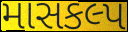
માસકલ્પ